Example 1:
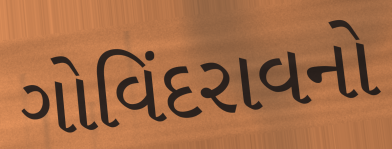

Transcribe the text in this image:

ગોવિંદરાવનો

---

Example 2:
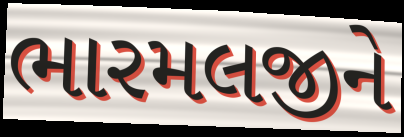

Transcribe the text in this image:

ભારમલજીને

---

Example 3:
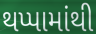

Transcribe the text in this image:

થપ્પામાંથી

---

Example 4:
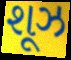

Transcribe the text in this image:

શૂઝ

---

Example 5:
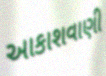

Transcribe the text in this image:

આકાશવાણી